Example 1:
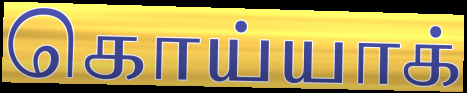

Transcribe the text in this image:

கொய்யாக்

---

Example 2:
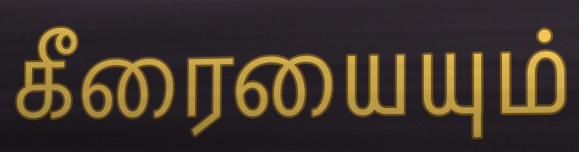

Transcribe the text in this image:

கீரையையும்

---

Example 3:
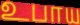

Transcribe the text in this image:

உபாய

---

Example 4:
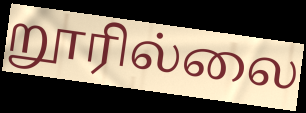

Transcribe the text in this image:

றூரில்லை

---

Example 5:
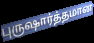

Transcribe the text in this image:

புருஷார்த்தமான